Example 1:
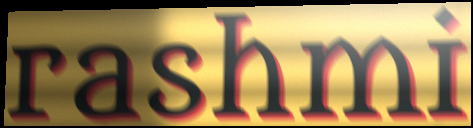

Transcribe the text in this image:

rashmi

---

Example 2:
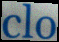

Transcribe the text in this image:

clo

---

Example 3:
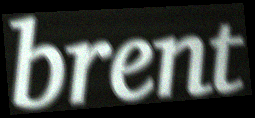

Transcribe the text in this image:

brent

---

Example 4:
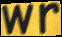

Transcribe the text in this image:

wr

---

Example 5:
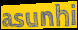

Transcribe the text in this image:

asunhi